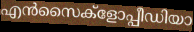
എൻസൈക്ളോപ്പീഡിയാ